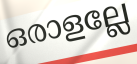
ഒരാളല്ലേ